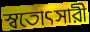
স্বতোৎসারী